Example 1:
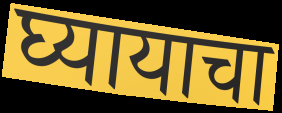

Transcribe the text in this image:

घ्यायाचा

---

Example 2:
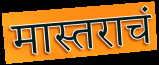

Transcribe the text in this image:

मास्तराचं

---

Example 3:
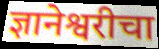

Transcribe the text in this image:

ज्ञानेश्वरीचा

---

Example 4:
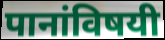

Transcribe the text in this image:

पानांविषयी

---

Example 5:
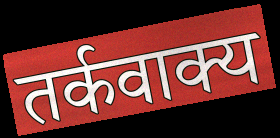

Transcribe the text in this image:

तर्कवाक्य